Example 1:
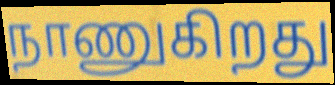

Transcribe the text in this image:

நாணுகிறது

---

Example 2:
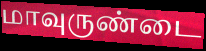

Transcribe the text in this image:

மாவுருண்டை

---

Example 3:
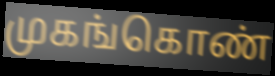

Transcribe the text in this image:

முகங்கொண்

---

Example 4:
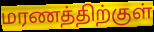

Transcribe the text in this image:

மரணத்திற்குள்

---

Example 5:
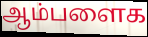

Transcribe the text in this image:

ஆம்பளைக